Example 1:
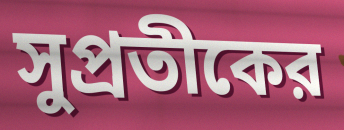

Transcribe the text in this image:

সুপ্রতীকের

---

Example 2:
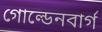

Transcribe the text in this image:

গোল্ডেনবার্গ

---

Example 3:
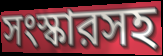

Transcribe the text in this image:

সংস্কারসহ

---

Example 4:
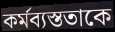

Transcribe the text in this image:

কর্মব্যস্ততাকে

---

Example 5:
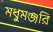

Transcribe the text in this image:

মধুমঞ্জরি